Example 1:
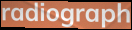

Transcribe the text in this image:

radiograph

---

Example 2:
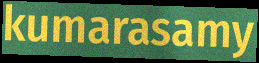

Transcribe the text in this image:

kumarasamy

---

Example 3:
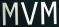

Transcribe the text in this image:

MVM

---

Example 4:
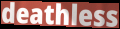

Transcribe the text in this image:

deathless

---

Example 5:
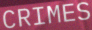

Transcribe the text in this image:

CRIMES